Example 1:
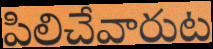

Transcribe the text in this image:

పిలిచేవారుట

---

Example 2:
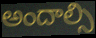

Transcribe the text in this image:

అందాల్సి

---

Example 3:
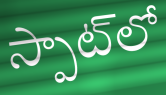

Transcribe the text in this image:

స్పాట్‌లో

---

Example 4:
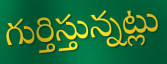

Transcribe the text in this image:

గుర్తిస్తున్నట్లు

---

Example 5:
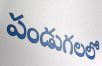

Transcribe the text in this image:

పండుగలలో